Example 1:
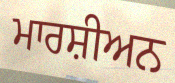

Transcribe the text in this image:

ਮਾਰਸ਼ੀਅਨ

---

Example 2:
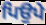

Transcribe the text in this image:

ਪਿਉਪੇ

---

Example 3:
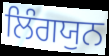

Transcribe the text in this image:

ਲਿੰਗਯੁਨ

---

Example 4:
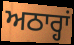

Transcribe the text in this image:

ਅਠਾਰ੍ਹਾਂ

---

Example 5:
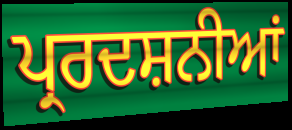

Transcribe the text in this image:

ਪ੍ਰਰਦਸ਼ਨੀਆਂ